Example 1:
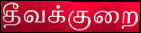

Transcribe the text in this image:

தீவக்குறை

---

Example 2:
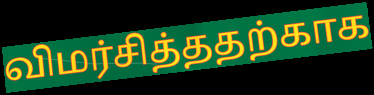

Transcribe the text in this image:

விமர்சித்ததற்காக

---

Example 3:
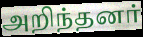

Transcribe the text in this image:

அறிந்தனர்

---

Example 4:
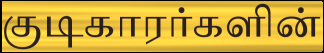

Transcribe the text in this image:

குடிகாரர்களின்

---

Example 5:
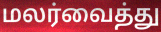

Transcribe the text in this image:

மலர்வைத்து